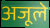
अजूले